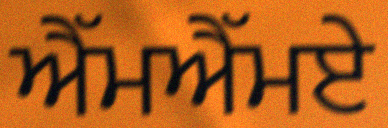
ਐੱਮਐੱਮਏ